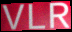
VLR